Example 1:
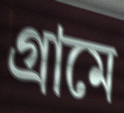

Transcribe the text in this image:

গ্রামে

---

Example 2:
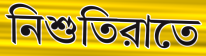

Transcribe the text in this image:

নিশুতিরাতে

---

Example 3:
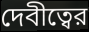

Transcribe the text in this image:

দেবীত্বের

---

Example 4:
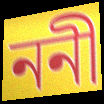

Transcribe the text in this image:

ননী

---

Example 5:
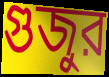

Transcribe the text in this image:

গুজুর